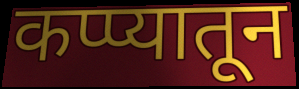
कप्प्यातून